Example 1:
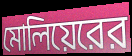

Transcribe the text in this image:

মোলিয়েরের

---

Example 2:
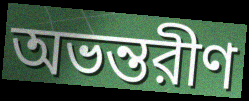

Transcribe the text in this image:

অভন্তরীণ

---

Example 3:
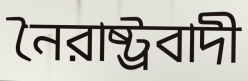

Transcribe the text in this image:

নৈরাষ্ট্রবাদী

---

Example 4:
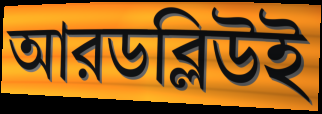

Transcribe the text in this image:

আরডব্লিউই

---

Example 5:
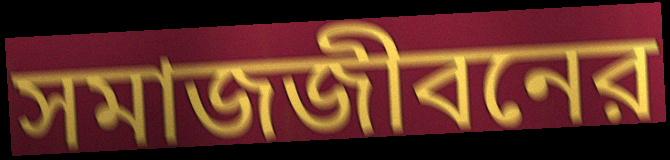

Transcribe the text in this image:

সমাজজীবনের